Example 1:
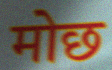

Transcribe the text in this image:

मोछ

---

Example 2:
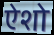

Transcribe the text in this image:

ऐशो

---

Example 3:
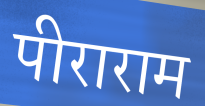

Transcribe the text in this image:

पीराराम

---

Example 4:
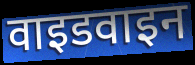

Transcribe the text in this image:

वाइडवाइन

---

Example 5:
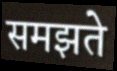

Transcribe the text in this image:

समझते